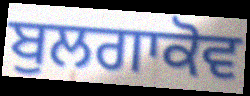
ਬੁਲਗਾਕੋਵ